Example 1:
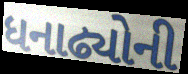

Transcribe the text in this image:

ધનાઢ્યોની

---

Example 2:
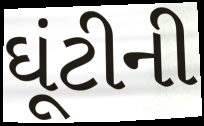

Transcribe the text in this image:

ઘૂંટીની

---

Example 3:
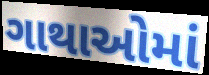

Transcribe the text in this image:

ગાથાઓમાં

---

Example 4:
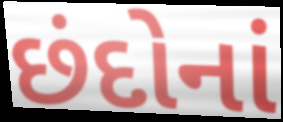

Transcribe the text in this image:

છંદોનાં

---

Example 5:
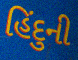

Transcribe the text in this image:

હિંદુની